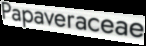
Papaveraceae